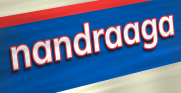
nandraaga